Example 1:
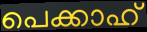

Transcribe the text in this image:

പെക്കാഹ്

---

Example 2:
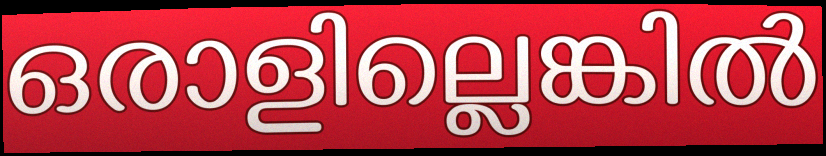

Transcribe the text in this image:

ഒരാളില്ലെങ്കിൽ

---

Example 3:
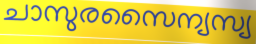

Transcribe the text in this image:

ചാസുരസൈന്യസ്യ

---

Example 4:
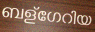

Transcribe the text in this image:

ബള്ഗേറിയ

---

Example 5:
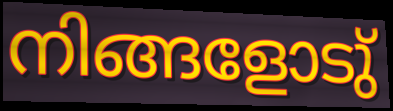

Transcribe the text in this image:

നിങ്ങളോടു്